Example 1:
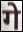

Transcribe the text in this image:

गे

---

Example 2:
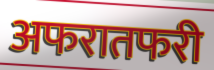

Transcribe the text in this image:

अफरातफरी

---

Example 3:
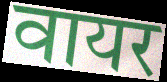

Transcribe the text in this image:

वायर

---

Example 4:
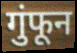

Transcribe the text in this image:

गुंफून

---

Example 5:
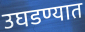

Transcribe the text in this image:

उघडण्यात